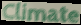
Climate